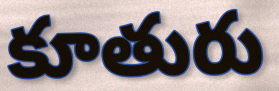
కూతురు